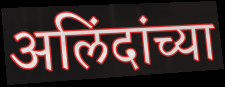
अलिंदांच्या